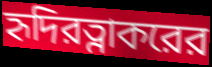
হৃদিরত্নাকরের